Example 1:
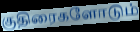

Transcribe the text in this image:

குதிரைகளோடும்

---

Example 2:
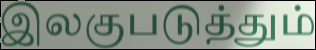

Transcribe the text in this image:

இலகுபடுத்தும்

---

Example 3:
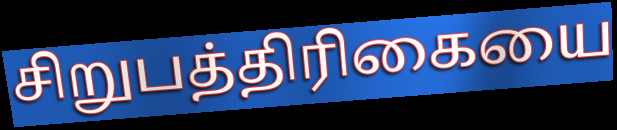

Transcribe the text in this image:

சிறுபத்திரிகையை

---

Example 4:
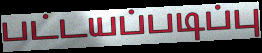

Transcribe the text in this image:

பட்டயப்படிப்பு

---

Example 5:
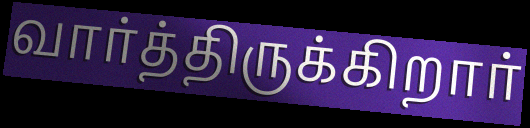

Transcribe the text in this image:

வார்த்திருக்கிறார்